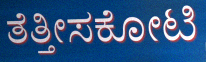
ತೆತ್ತೀಸಕೋಟಿ